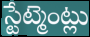
స్టేట్మెంట్లు